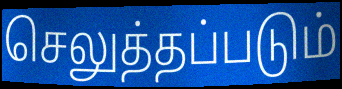
செலுத்தப்படும்